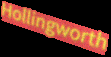
Hollingworth